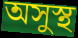
অসুস্থ